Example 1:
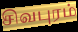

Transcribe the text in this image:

சிவபுரம்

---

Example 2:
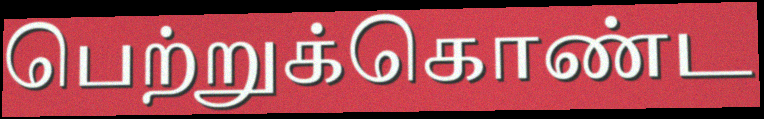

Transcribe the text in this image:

பெற்றுக்கொண்ட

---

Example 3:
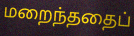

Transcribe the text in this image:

மறைந்ததைப்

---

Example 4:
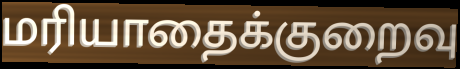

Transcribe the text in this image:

மரியாதைக்குறைவு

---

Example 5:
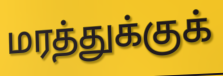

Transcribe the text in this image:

மரத்துக்குக்